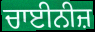
ਚਾਈਨੀਜ਼